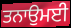
ਤਨਾਉਮਈ